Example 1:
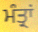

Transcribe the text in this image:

ਮੰਤ੍ਰਾਂ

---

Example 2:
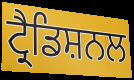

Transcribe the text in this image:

ਟ੍ਰੈਡਿਸ਼ਨਲ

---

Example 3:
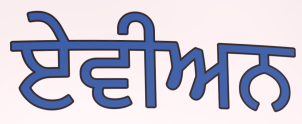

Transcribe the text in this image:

ਏਵੀਅਨ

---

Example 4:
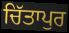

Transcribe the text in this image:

ਚਿੱਤਾਪੁਰ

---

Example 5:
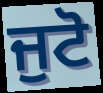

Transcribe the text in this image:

ਜੁਟੋ